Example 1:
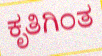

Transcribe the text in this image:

ಕೃತಿಗಿಂತ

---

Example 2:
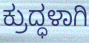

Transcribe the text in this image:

ಕ್ರುದ್ಧಳಾಗಿ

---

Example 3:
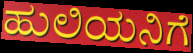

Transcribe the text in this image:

ಹುಲಿಯನಿಗೆ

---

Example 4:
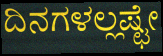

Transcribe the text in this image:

ದಿನಗಳಲ್ಲಷ್ಟೇ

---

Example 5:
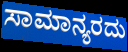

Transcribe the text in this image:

ಸಾಮಾನ್ಯರದು